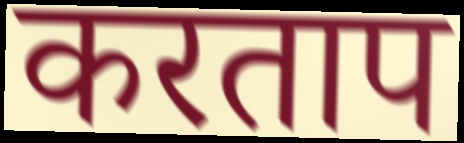
करताप